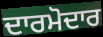
ਦਾਰਮੋਦਾਰ